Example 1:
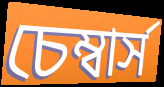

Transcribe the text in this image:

চেম্বার্স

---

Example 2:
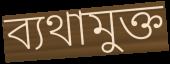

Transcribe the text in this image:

ব্যথামুক্ত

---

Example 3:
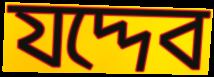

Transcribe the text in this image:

যদ্দেব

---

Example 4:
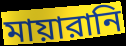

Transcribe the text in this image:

মায়ারানি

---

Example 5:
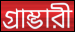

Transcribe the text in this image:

গ্রাম্ভারী